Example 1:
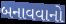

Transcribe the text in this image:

બનાવવાનો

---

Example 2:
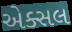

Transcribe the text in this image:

એક્સલ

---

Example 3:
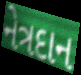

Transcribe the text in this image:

નેત્રદાન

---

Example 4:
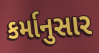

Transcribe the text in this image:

કર્માનુસાર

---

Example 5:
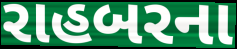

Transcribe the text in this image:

રાહબરના